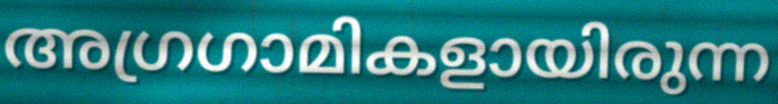
അഗ്രഗാമികളായിരുന്ന